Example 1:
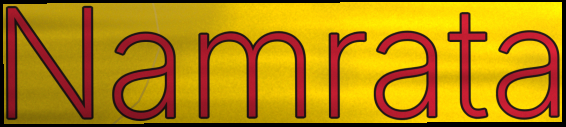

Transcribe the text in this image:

Namrata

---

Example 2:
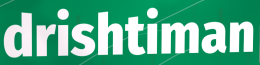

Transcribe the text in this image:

drishtiman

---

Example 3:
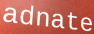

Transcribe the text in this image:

adnate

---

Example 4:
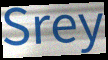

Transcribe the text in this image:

Srey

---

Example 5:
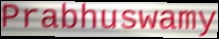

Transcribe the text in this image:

Prabhuswamy